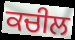
ਕਚੀਲ